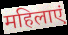
महिलाएं